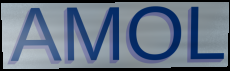
AMOL